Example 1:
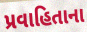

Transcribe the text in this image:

પ્રવાહિતાના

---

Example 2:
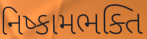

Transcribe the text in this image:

નિષ્કામભક્તિ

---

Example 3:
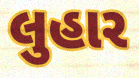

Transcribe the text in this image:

લુહાર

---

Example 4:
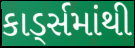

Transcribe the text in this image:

કાર્ડ્સમાંથી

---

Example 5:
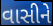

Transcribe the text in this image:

વાસીને